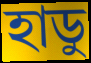
হাডু